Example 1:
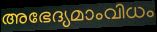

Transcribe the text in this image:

അഭേദ്യമാംവിധം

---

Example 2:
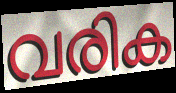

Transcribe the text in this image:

വരിക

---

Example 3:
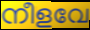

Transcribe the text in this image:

നീളവേ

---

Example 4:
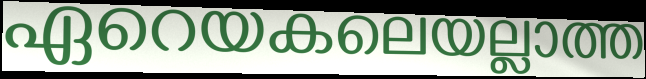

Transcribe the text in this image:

ഏറെയകലെയല്ലാത്ത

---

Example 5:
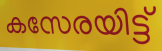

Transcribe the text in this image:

കസേരയിട്ട്